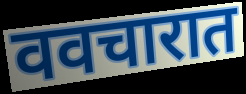
ववचारात